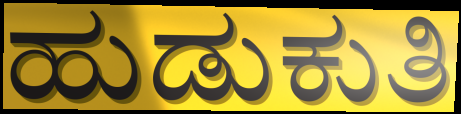
ಹುಡುಕುತಿ